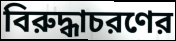
বিরুদ্ধাচরণের